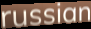
russian